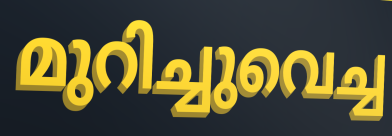
മുറിച്ചുവെച്ച